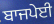
ਬਾਜਪੇਈ